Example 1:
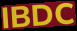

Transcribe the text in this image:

IBDC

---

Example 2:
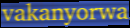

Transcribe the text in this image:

vakanyorwa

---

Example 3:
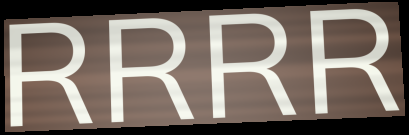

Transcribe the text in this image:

RRRR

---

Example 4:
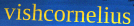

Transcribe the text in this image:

vishcornelius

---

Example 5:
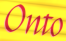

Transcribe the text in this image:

Onto